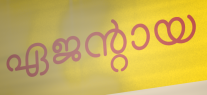
ഏജന്റായ